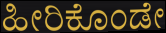
ಹೀರಿಕೊಂಡೇ